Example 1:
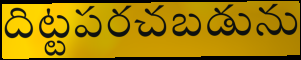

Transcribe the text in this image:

దిట్టపరచబడును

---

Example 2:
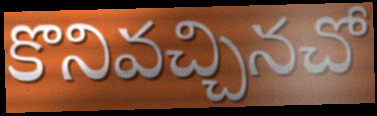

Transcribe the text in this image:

కొనివచ్చినచో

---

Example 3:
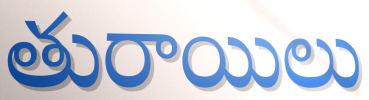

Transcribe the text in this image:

తురాయిలు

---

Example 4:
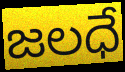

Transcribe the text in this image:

జలధే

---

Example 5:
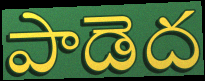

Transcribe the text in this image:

పాడెద